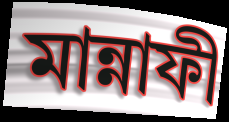
মান্নাফী